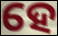
ହେ